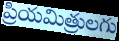
ప్రియమిత్రులగు